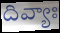
దివ్యాః